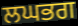
ਲਘਭਗ